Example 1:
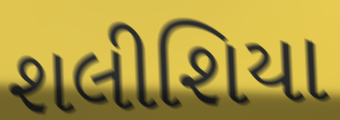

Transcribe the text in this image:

શલીશિયા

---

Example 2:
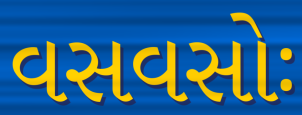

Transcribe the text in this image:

વસવસોઃ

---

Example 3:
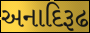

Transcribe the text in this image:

અનાદિરૂઢ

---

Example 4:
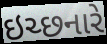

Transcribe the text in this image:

ઇચ્છનારે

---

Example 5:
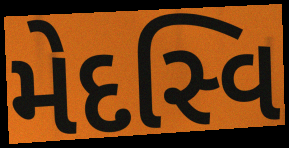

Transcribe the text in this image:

મેદસ્વિ